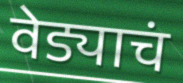
वेड्याचं